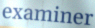
examiner